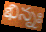
ఖిన్నః